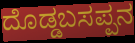
ದೊಡ್ಡಬಸಪ್ಪನ